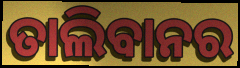
ତାଲିବାନର